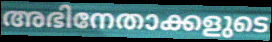
അഭിനേതാക്കളുടെ